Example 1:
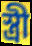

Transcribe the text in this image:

স্ত্ৰী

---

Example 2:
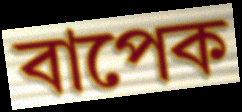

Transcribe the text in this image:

বাপেক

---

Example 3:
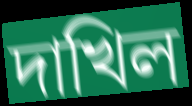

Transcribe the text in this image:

দাখিল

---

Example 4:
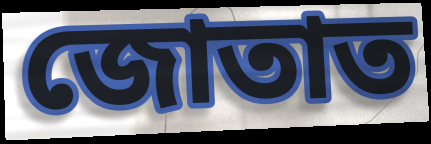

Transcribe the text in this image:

জোতাত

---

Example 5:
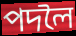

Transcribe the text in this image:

পদলৈ